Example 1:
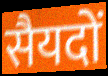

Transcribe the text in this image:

सैयदों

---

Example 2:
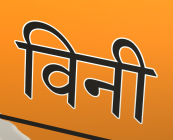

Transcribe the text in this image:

विनी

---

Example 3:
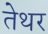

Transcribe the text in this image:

तेथर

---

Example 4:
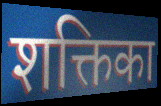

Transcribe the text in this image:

शक्तिका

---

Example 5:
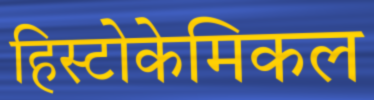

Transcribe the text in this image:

हिस्टोकेमिकल